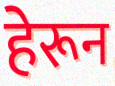
हेरून